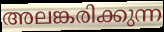
അലങ്കരിക്കുന്ന